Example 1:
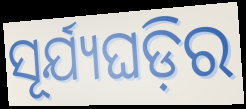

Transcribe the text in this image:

ସୂର୍ଯ୍ୟଘଡ଼ିର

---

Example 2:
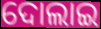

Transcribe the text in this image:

ଦୋଲାଇ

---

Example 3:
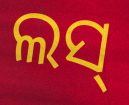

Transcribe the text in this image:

ଲସ୍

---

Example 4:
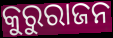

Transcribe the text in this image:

କୁରୁରାଜନ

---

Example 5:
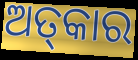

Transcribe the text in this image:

ଅତ୍‌କାର